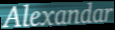
Alexandar